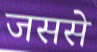
जससे